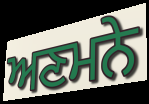
ਅਣਮਨੇ